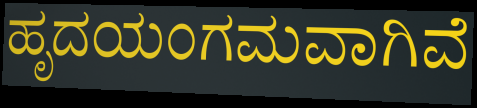
ಹೃದಯಂಗಮವಾಗಿವೆ